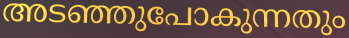
അടഞ്ഞുപോകുന്നതും